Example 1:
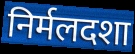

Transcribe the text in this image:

निर्मलदशा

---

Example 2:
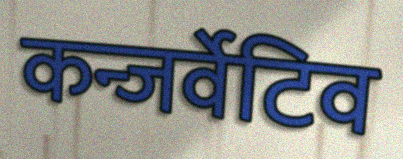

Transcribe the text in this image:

कन्जर्वेटिव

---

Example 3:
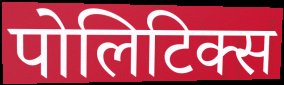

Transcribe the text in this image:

पोलिटिक्स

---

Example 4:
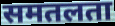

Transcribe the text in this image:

समतलता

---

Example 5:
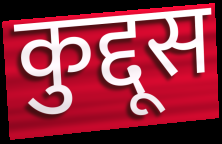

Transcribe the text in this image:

कुद्दूस